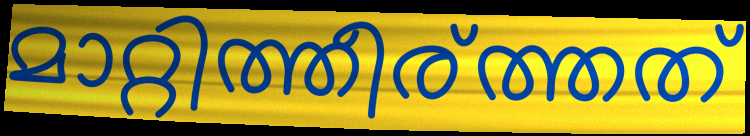
മാറ്റിത്തീര്ത്തത്